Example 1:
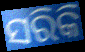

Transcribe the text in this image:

ସରିକି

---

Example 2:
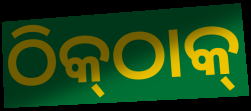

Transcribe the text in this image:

ଠିକ୍‌ଠାକ୍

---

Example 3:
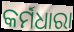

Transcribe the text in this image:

କର୍ମଧାରା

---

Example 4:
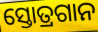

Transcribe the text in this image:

ସ୍ତୋତ୍ରଗାନ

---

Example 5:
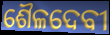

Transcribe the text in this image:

ଶୈଳଦେବୀ